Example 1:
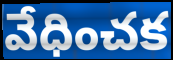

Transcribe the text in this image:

వేధించక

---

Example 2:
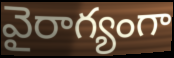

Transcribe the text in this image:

వైరాగ్యంగా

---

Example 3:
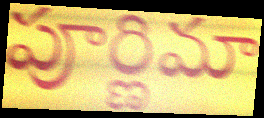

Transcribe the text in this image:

పూర్ణిమా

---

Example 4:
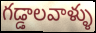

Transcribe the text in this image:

గడ్డాలవాళ్ళు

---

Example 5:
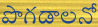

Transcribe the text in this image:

పొగడాలనో